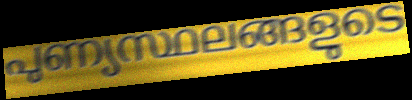
പുണ്യസ്ഥലങ്ങളുടെ